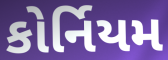
કોર્નિયમ